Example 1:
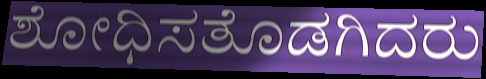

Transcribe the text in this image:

ಶೋಧಿಸತೊಡಗಿದರು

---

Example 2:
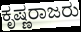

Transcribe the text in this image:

ಕೃಷ್ಣರಾಜರು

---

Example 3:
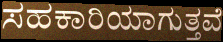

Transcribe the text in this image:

ಸಹಕಾರಿಯಾಗುತ್ತವೆ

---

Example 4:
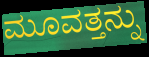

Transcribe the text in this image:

ಮೂವತ್ತನ್ನು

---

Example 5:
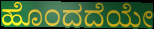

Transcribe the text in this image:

ಹೊಂದದೆಯೇ